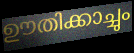
ഊതിക്കാച്ചും